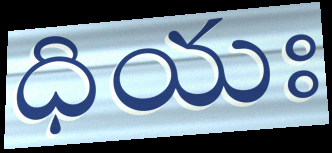
ధియః